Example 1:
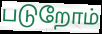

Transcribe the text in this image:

படுறோம்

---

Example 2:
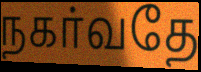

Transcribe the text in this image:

நகர்வதே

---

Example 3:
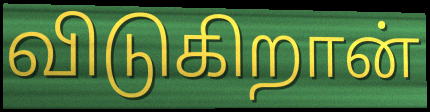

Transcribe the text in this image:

விடுகிறான்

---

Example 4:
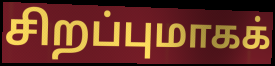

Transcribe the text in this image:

சிறப்புமாகக்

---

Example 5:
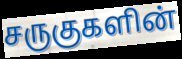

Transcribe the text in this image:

சருகுகளின்